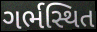
ગર્ભસ્થિત